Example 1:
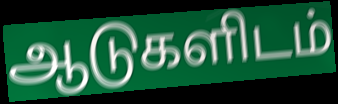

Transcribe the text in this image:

ஆடுகளிடம்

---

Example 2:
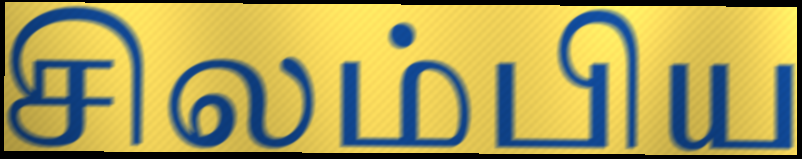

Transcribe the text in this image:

சிலம்பிய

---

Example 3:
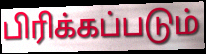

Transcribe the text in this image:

பிரிக்கப்படும்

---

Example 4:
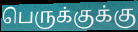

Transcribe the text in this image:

பெருக்குக்கு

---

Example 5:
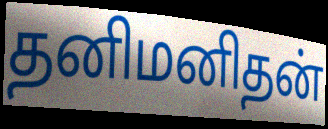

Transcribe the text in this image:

தனிமனிதன்